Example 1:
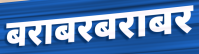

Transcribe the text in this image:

बराबरबराबर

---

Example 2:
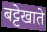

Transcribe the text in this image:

बट्टेखाते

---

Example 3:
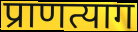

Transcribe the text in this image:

प्राणत्याग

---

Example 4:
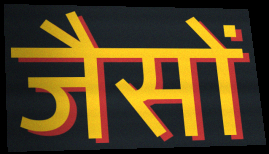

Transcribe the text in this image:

जैसों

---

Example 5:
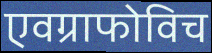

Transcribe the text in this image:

एवग्राफोविच